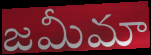
జమీమా